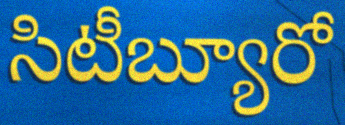
సిటీబ్యూరో